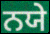
ਨਯੇ